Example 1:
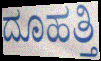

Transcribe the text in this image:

ದೂಹತ್ತಿ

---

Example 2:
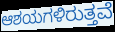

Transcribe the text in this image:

ಆಶಯಗಳಿರುತ್ತವೆ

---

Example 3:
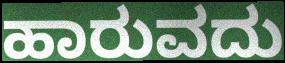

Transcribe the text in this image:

ಹಾರುವದು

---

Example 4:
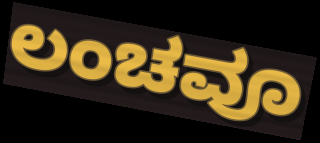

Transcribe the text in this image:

ಲಂಚವೂ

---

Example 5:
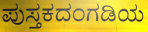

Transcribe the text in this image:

ಪುಸ್ತಕದಂಗಡಿಯ